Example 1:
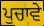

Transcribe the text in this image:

ਪੁਚਾਵੇ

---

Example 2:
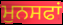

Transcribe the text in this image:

ਮੁਨਸਫਾਂ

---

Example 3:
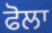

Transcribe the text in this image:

ਫੋਲਾ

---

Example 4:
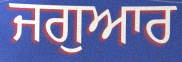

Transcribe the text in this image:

ਜਗੁਆਰ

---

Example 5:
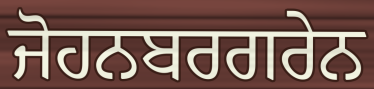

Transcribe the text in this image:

ਜੋਹਨਬਰਗਰੇਨ